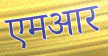
एमआर